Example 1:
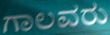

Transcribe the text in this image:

ಗಾಲವರು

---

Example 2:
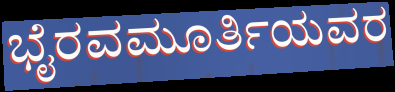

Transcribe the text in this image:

ಭೈರವಮೂರ್ತಿಯವರ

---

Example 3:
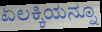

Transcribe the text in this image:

ಏಲಕ್ಕಿಯನ್ನೂ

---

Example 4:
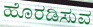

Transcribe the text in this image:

ಹೊರಡಿಸುವ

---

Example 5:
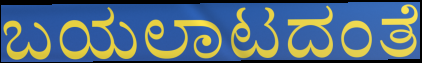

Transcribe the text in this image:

ಬಯಲಾಟದಂತೆ